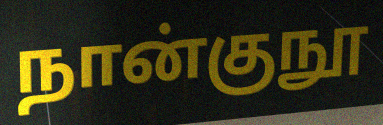
நான்குநூ